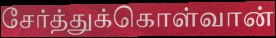
சேர்த்துக்கொள்வான்